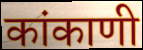
कांकाणी